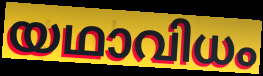
യഥാവിധം